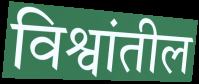
विश्वांतील